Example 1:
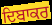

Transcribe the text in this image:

ਦਿਬਾਕਰ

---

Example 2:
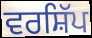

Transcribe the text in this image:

ਵਰਸ਼ਿੱਪ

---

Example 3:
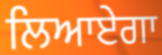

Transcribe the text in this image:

ਲਿਆਏਗਾ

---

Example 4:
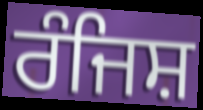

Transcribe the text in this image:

ਰੰਜਿਸ਼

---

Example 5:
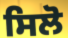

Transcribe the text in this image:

ਸਿਲੋ